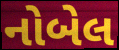
નોબેલ